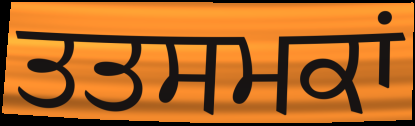
ਤਤਸਮਕਾਂ